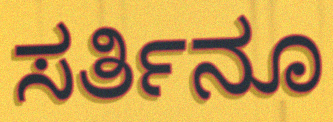
ಸರ್ತಿನೂ